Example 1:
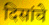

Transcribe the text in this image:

दिसांचे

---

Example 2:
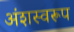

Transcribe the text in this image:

अंशस्वरूप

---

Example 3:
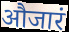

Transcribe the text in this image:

औजारं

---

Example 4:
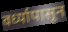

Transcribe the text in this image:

वर्ध्यापासून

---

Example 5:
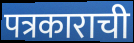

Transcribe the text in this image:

पत्रकाराची